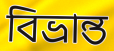
বিভ্ৰান্ত